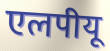
एलपीयू